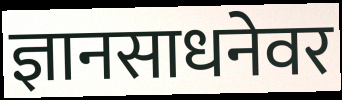
ज्ञानसाधनेवर